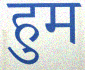
हुम